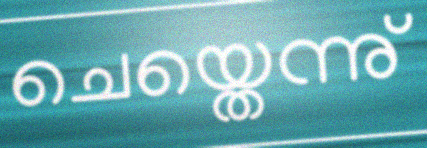
ചെയ്തെന്നു്